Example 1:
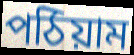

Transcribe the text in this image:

পঠিয়াম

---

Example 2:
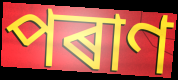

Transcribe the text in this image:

পৰাণ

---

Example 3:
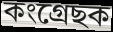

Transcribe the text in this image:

কংগ্ৰেছক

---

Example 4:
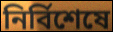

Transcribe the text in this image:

নিৰ্বিশেষে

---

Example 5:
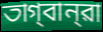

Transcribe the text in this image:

তাগ্‌বান্‌ৱা